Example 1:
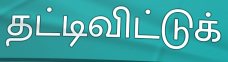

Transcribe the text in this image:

தட்டிவிட்டுக்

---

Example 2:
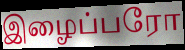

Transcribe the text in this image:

இழைப்பரோ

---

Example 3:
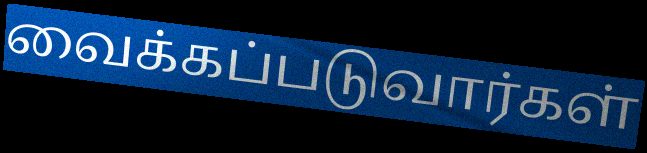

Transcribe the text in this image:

வைக்கப்படுவார்கள்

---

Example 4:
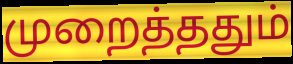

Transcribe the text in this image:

முறைத்ததும்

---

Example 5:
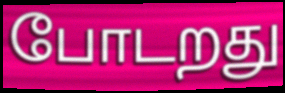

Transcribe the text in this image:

போடறது